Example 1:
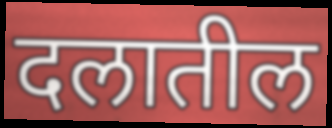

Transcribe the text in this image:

दलातील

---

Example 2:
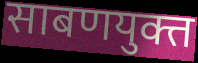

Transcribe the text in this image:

साबणयुक्त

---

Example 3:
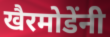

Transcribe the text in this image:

खैरमोडेंनी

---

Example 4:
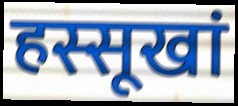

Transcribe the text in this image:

हस्सूखां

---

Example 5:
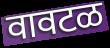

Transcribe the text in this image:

वावटळ